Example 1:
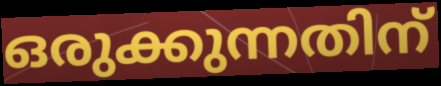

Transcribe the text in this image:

ഒരുക്കുന്നതിന്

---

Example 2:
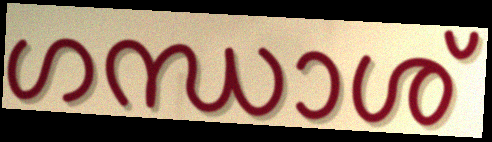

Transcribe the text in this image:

ഗന്ധാശ്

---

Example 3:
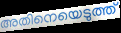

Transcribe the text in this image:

അതിനെയെടുത്ത്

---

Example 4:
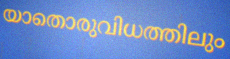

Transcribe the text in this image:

യാതൊരുവിധത്തിലും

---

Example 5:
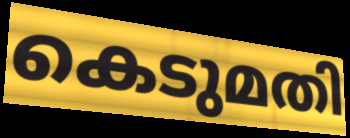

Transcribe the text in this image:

കെടുമതി